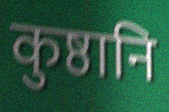
कुष्ठानि